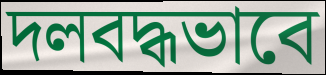
দলবদ্ধভাবে